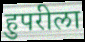
हुपरीला